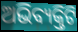
ଅଭିବ୍ୟକ୍ତିଟି